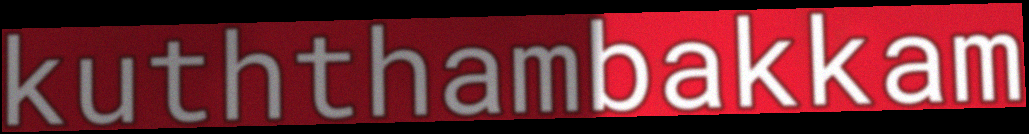
kuththambakkam